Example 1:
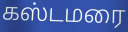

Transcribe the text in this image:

கஸ்டமரை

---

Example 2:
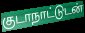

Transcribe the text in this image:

குடாநாட்டுடன்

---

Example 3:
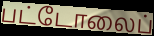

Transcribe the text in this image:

பட்டோலைப்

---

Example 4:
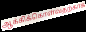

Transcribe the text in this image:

ஆக்கிக்கொள்வதற்காக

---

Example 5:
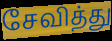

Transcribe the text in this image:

சேவித்து